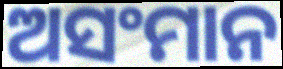
ଅସଂମାନ